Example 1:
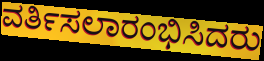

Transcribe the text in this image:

ವರ್ತಿಸಲಾರಂಭಿಸಿದರು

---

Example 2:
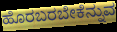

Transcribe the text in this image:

ಹೊರಬರಬೇಕೆನ್ನುವ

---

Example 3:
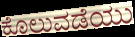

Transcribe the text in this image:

ಕೊಲುವಡೆಯು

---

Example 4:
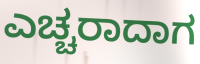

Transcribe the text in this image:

ಎಚ್ಚರಾದಾಗ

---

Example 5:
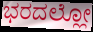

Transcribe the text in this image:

ಭರದಲ್ಲೋ